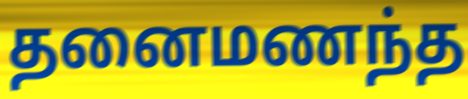
தனைமணந்த